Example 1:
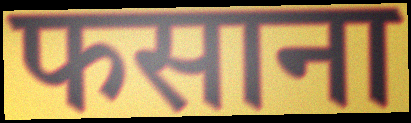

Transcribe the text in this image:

फसाना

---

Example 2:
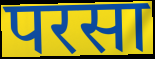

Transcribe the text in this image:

परसा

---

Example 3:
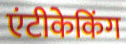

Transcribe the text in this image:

एंटीकेकिंग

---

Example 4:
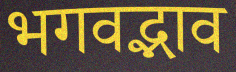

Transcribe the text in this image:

भगवद्भाव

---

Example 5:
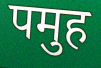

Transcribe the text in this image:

पमुह